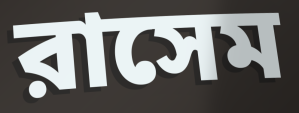
রাসেম